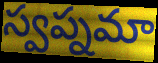
స్వప్నమా